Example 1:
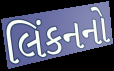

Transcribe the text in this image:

લિંકનનો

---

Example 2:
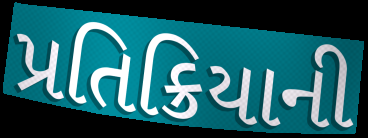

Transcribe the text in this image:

પ્રતિક્રિયાની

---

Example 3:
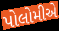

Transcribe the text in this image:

પોલોમીએ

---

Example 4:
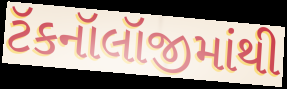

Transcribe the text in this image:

ટૅકનૉલૉજીમાંથી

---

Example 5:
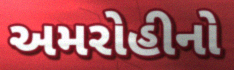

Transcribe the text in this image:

અમરોહીનો